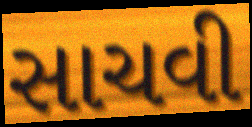
સાચવી